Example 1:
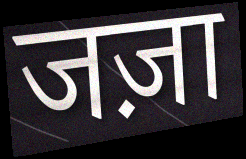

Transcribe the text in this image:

जज़ा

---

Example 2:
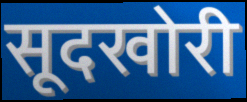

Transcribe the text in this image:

सूदखोरी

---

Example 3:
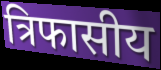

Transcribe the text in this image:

त्रिफासीय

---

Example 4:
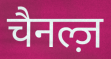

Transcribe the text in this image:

चैनल्ज़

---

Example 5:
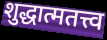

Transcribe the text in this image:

शुद्धात्मतत्त्व